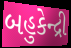
બહુકેન્દ્રી